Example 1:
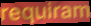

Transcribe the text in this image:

requiram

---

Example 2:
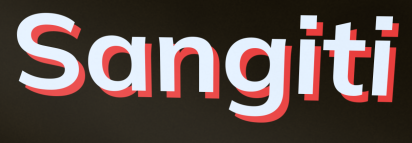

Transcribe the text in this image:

Sangiti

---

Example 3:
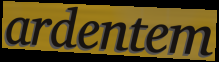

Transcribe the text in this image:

ardentem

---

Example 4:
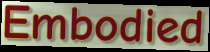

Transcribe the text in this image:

Embodied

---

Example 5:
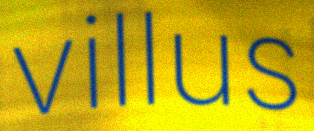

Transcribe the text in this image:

villus